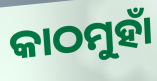
କାଠମୁହାଁ